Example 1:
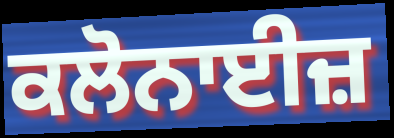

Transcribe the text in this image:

ਕਲੋਨਾਈਜ਼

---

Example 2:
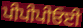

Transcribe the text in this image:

ਪੀਪੀਪੀਓਈ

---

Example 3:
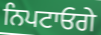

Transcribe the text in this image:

ਨਿਪਟਾਓਗੇ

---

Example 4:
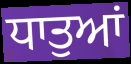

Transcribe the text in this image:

ਧਾਤੁਆਂ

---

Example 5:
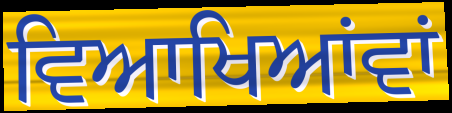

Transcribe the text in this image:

ਵਿਆਖਿਆਂਵਾਂ